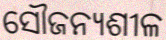
ସୌଜନ୍ୟଶୀଳ